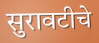
सुरावटीचे